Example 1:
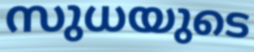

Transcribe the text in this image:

സുധയുടെ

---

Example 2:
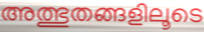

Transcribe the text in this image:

അത്ഭുതങ്ങളിലൂടെ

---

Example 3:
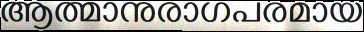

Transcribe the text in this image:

ആത്മാനുരാഗപരമായ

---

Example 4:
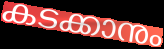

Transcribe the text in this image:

കടക്കാനും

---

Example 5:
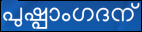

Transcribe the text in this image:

പുഷ്പാംഗദന്